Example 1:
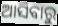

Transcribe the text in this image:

ଆସିବାରୁ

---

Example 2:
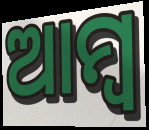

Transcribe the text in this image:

ଆମ୍ୱ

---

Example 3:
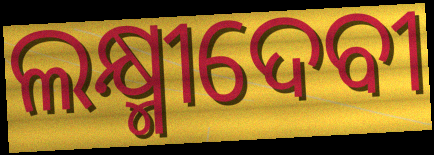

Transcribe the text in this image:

ଲକ୍ଷ୍ମୀଦେବୀ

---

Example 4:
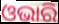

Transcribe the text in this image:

ଓଭାରି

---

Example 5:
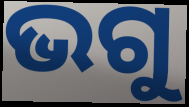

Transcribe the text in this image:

ଭଗୁ